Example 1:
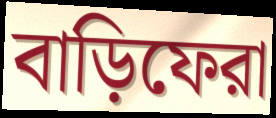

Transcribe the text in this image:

বাড়িফেরা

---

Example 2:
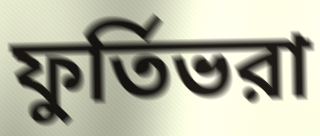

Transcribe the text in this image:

ফুর্তিভরা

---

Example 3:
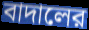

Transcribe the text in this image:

বাদালের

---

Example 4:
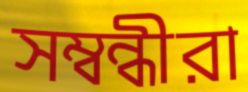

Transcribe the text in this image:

সম্বন্ধীরা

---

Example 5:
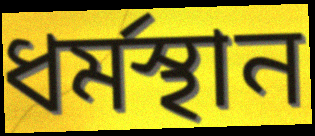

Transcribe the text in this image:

ধর্মস্থান